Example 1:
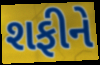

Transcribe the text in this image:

શફીને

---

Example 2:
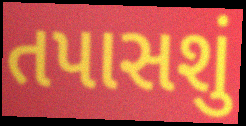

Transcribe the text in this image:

તપાસશું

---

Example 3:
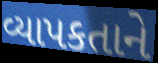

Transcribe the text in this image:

વ્યાપકતાને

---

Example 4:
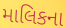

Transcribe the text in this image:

માલિકના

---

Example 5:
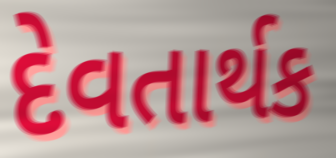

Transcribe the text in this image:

દેવતાર્થક